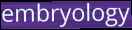
embryology